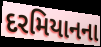
દરમિયાનના